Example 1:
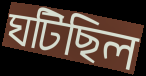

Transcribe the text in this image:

ঘটিছিল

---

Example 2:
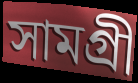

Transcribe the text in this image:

সামগ্ৰী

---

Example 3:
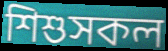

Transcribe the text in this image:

শিশুসকল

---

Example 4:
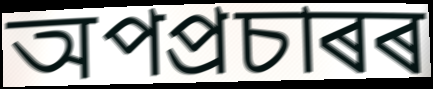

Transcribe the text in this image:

অপপ্ৰচাৰৰ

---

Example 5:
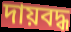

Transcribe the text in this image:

দায়বদ্ধ